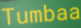
Tumbaa